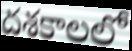
దశకాలలో